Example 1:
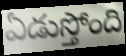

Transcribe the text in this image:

ఏడుస్తోంది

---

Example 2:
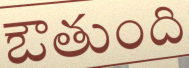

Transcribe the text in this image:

ఔతుంది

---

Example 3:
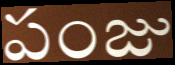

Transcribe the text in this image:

పంజు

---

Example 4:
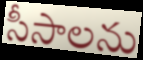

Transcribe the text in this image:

సీసాలను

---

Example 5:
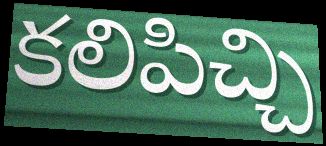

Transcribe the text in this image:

కలిపిచ్చి